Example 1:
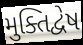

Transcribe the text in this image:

મુક્તિદ્વેષ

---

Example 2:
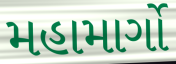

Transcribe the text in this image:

મહામાર્ગો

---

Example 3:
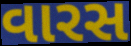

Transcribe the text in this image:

વારસ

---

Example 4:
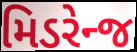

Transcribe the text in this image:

મિડરેન્જ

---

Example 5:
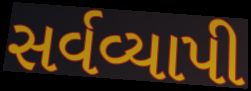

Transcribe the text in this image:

સર્વવ્યાપી